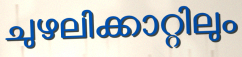
ചുഴലിക്കാറ്റിലും